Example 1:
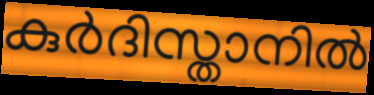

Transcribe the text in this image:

കുർദിസ്താനിൽ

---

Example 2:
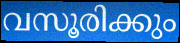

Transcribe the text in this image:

വസൂരിക്കും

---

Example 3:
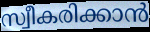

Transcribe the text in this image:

സ്വീകരിക്കാൻ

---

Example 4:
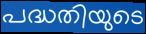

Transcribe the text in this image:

പദ്ധതിയുടെ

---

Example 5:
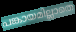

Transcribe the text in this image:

പങ്കായമില്ലാതെ